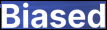
Biased